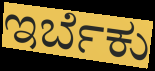
ಇರ್ಬೆಕು